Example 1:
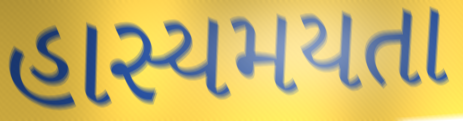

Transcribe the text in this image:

હાસ્યમયતા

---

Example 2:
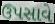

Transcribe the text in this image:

ઉપસાવે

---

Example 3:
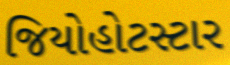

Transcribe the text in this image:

જિયોહોટસ્ટાર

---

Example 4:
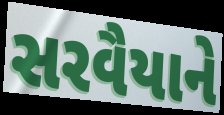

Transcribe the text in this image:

સરવૈયાને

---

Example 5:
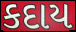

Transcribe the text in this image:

કદાય